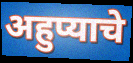
अहुप्याचे